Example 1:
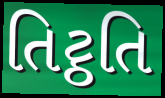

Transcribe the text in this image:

તિટ્ઠતિ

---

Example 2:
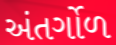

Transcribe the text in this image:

અંતર્ગોળ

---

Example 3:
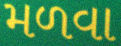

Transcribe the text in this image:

મળવા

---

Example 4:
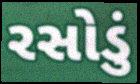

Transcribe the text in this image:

રસોડું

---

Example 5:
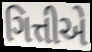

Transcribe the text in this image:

ગિત્તીએ